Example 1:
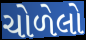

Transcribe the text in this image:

ચોળેલો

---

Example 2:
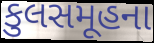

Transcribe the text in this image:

કુલસમૂહના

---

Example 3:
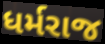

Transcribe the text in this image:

ધર્મરાજ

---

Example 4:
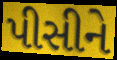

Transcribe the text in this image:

પીસીને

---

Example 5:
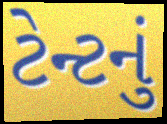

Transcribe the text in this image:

ટેન્ટનું